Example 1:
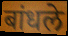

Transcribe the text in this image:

बांधले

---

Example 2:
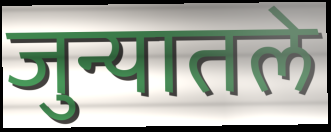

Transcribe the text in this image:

जुन्यातले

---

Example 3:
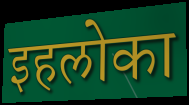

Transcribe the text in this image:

इहलोका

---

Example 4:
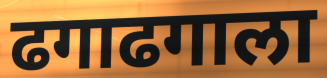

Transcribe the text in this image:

ढगाढगाला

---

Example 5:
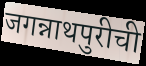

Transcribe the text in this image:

जगन्नाथपुरीची